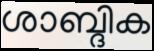
ശാബ്ദിക